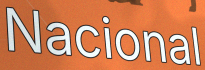
Nacional